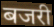
बजरी